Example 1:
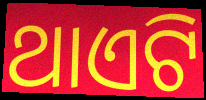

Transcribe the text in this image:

ଥାଏଟି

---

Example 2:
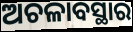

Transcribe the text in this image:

ଅଚଳାବସ୍ଥାର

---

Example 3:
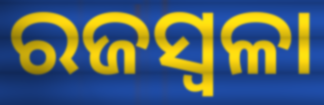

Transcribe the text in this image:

ରଜସ୍ବଳା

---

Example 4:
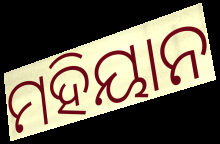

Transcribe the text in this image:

ମହିୟାନ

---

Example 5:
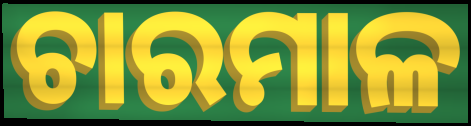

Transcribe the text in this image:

ଚାରମାଳ